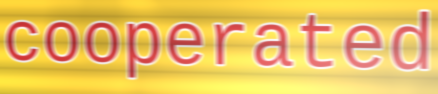
cooperated